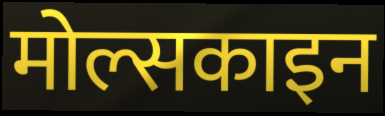
मोल्सकाइन